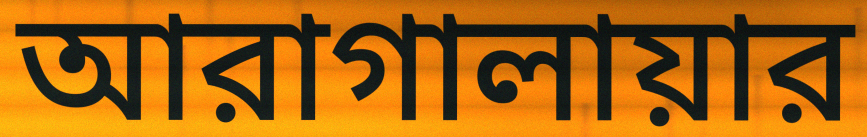
আরাগালায়ার